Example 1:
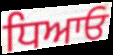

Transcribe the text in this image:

ਧਿਆਓ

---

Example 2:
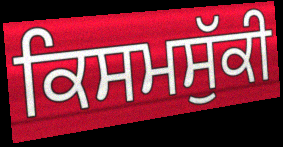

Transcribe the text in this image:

ਕਿਸਮਸੁੱਕੀ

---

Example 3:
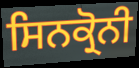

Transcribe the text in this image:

ਸਿਨਕ੍ਰੋਨੀ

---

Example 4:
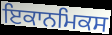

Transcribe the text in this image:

ਇਕਾਨਮਿਕਸ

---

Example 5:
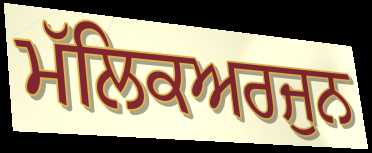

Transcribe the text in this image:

ਮੱਲਿਕਅਰਜੁਨ